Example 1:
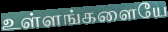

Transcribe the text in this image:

உள்ளங்களையே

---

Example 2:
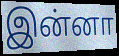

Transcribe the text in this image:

இன்னா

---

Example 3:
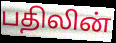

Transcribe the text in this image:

பதிலின்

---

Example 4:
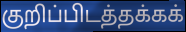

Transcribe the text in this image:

குறிப்பிடத்தக்கக்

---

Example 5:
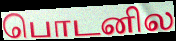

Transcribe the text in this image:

பொடனில